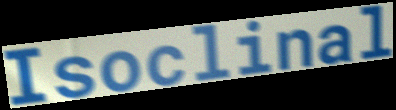
Isoclinal